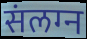
संलग्‍न